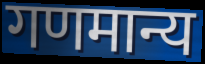
गणमान्य